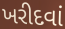
ખરીદવાં